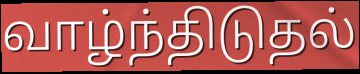
வாழ்ந்திடுதல்